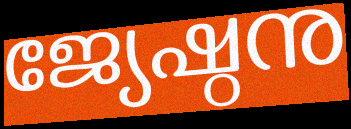
ജ്യേഷ്ഠനു